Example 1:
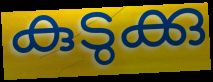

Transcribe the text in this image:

കുടുക്കു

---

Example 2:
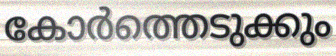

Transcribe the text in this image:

കോർത്തെടുക്കും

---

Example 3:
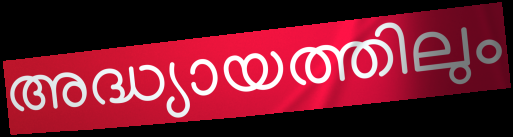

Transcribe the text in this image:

അദ്ധ്യായത്തിലും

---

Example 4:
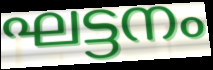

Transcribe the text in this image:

ഘട്ടനം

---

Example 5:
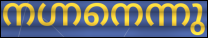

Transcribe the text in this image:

നഗ്നനെന്നു